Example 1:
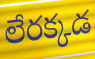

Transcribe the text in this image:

లేరక్కడ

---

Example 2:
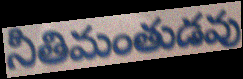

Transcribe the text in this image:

నీతిమంతుడవు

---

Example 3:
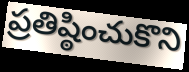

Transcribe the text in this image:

ప్రతిష్ఠించుకొని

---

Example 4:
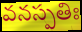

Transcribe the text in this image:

వనస్పతిః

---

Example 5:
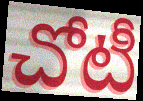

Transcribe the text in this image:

చోటీ